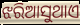
ଝରିଆସୁଥାଏ